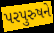
પરપુરુષને